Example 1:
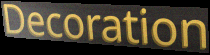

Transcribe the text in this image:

Decoration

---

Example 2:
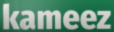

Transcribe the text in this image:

kameez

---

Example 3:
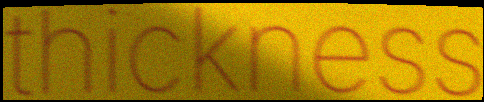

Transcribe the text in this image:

thickness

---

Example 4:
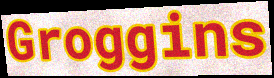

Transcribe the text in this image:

Groggins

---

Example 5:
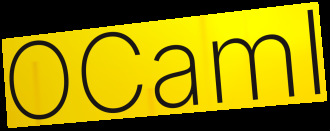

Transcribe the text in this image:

OCaml